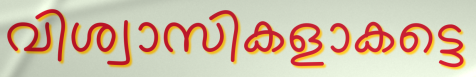
വിശ്വാസികളാകട്ടെ